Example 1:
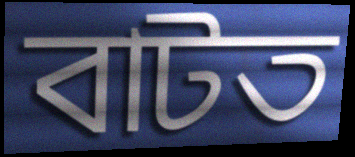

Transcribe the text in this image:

বাটত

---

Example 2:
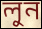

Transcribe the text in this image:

লুন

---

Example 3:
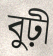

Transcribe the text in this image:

বুঢ়ী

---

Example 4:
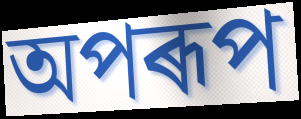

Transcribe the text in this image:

অপৰূপ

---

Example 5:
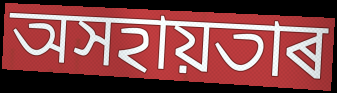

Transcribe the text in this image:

অসহায়তাৰ